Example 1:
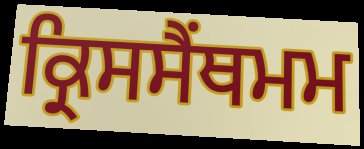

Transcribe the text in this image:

ਕ੍ਰਿਸਸੈਂਥਮਮ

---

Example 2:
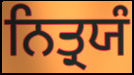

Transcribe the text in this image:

ਨਿਤ੍ਰਯੰ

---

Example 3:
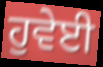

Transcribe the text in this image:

ਹੁਵੇਈ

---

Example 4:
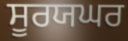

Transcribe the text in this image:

ਸੂਰਯਘਰ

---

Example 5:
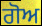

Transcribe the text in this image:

ਗੋਅ